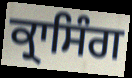
ਕ੍ਰਾਸਿੰਗ